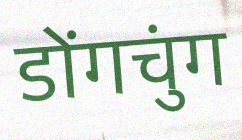
डोंगचुंग